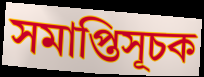
সমাপ্তিসূচক